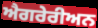
ਐਗਰੇਰੀਅਨ